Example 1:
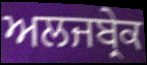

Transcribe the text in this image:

ਅਲਜਬ੍ਰੇਕ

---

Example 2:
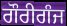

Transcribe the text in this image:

ਗੌਰੀਗੰਜ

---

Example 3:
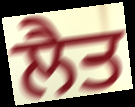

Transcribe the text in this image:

ਲੈਤ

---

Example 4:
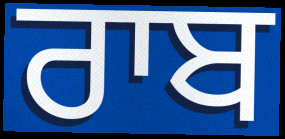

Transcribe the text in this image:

ਰਾਬ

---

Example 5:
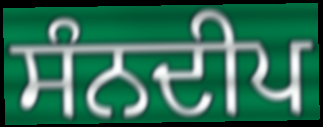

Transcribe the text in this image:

ਸੰਨਦੀਪ